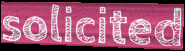
solicited